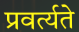
प्रवर्त्यते